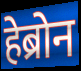
हेब्रोन